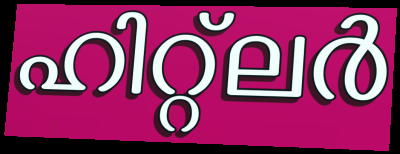
ഹിറ്റ്ലർ